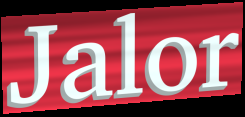
Jalor